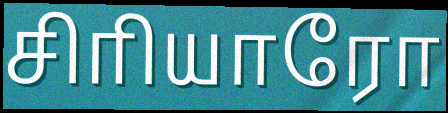
சிரியாரோ